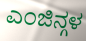
ಎಂಜಿನ್ಗಳ